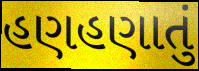
હણહણાતું